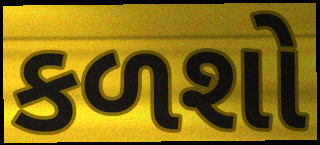
કળશો